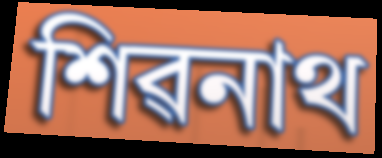
শিৱনাথ